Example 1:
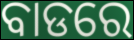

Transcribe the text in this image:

ବାଡରେ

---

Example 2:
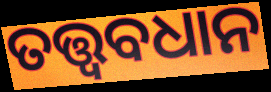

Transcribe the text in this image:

ତତ୍ତ୍ୱବଧାନ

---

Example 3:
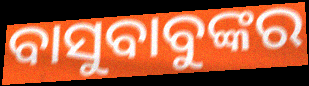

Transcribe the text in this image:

ବାସୁବାବୁଙ୍କର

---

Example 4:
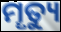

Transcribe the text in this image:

ମୄତ୍ୟୁ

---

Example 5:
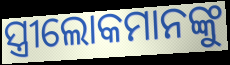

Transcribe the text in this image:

ସ୍ତ୍ରୀଲୋକମାନଙ୍କୁ